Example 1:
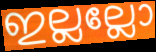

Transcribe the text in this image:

ഇല്ലല്ലോ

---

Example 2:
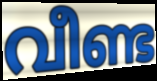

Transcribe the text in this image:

വീണ്ട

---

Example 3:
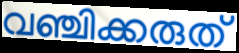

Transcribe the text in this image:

വഞ്ചിക്കരുത്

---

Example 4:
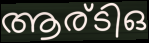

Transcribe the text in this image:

ആര്ടിഒ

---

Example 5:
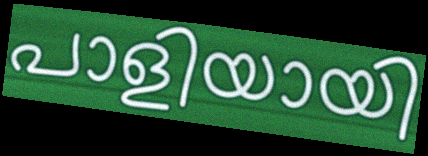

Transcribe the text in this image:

പാളിയായി